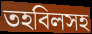
তহবিলসহ